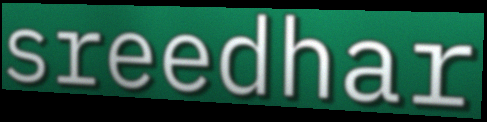
sreedhar